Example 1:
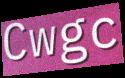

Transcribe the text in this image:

Cwgc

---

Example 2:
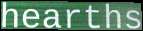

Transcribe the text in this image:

hearths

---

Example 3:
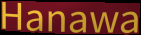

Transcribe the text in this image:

Hanawa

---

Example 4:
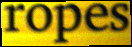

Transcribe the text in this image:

ropes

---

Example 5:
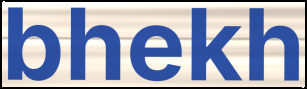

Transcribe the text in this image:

bhekh